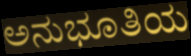
ಅನುಭೂತಿಯ